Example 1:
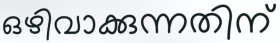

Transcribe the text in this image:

ഒഴിവാക്കുന്നതിന്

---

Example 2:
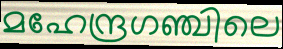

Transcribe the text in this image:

മഹേന്ദ്രഗഞ്ചിലെ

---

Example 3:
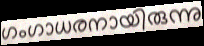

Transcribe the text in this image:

ഗംഗാധരനായിരുന്നു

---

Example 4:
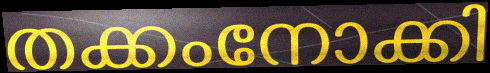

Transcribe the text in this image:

തക്കംനോക്കി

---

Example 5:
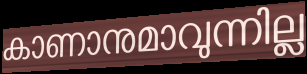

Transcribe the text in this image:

കാണാനുമാവുന്നില്ല